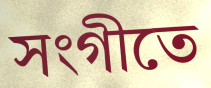
সংগীতে